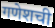
गणेशची